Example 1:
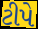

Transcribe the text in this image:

ટીપે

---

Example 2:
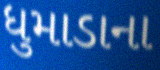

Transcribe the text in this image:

ધુમાડાના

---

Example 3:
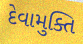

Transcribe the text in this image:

દેવામુક્તિ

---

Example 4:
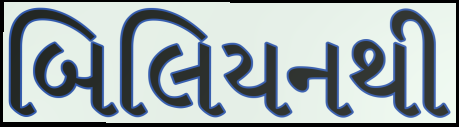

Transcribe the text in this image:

બિલિયનથી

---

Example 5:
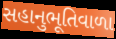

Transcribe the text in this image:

સહાનુભૂતિવાળા